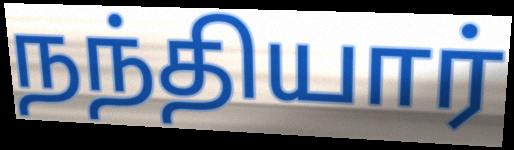
நந்தியார்